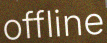
offline